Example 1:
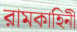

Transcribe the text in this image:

রামকাহিনী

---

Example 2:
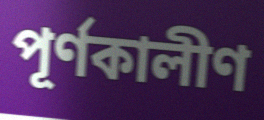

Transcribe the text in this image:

পূর্ণকালীণ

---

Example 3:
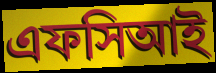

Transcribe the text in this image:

এফসিআই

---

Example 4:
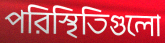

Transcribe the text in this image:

পরিস্থিতিগুলো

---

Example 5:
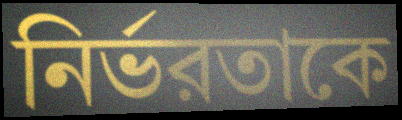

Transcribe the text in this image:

নির্ভরতাকে